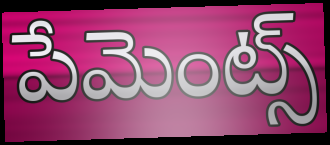
పేమెంట్స్